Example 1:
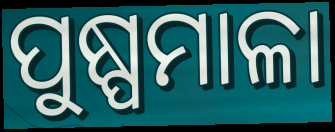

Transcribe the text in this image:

ପୁଷ୍ପମାଳା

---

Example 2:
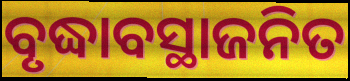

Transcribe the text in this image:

ବୃଦ୍ଧାବସ୍ଥାଜନିତ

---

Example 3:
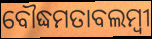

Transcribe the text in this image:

ବୌଦ୍ଧମତାବଲମ୍ବୀ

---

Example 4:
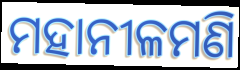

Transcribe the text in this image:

ମହାନୀଳମଣି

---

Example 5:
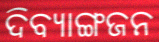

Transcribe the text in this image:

ଦିବ୍ୟାଙ୍ଗଜନ